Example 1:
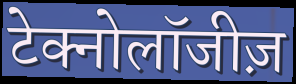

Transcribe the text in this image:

टेक्नोलॉजीज़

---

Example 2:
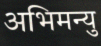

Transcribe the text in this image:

अभिमन्यु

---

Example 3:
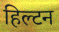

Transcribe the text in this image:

हिल्टन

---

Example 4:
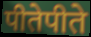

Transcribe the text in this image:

पीतेपीते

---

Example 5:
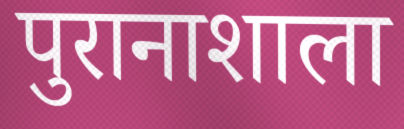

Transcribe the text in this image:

पुरानाशाला